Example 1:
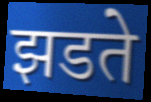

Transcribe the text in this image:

झडते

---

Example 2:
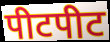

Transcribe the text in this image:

पीटपीट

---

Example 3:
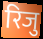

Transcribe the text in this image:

रिजु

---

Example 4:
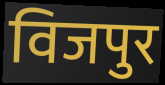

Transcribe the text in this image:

विजपुर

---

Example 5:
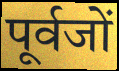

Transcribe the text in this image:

पूर्वजों